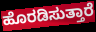
ಹೊರಡಿಸುತ್ತಾರೆ